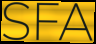
SFA